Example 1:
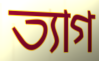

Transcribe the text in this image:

ত্যাগ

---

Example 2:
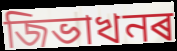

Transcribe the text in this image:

জিভাখনৰ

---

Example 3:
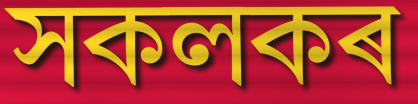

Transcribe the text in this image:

সকলকৰ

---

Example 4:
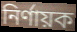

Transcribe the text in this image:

নিৰ্ণায়ক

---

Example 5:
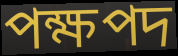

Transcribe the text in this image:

পক্ষপদ